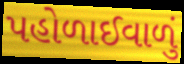
પહોળાઈવાળું